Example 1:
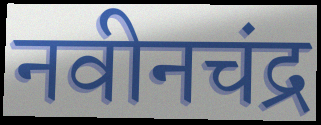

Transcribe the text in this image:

नवीनचंद्र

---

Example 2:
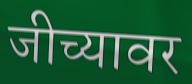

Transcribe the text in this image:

जीच्यावर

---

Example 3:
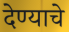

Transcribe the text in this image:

देण्याचे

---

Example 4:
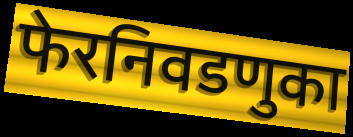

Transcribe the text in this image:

फेरनिवडणुका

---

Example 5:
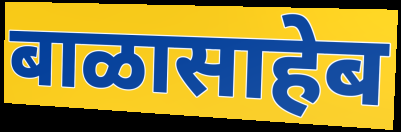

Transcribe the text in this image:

बाळासाहेब